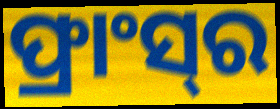
ଫ୍ରାଂସ୍‍ର